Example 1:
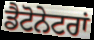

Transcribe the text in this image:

ਡੈਟੋਨੇਟਰਾਂ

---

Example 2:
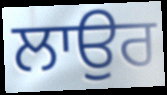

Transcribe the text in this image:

ਲਾਉਰ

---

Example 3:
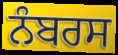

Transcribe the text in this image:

ਨੰਬਰਸ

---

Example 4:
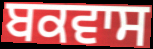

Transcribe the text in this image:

ਬਕਵਾਸ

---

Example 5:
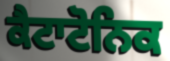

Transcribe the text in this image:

ਕੈਟਾਟੋਨਿਕ